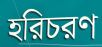
হরিচরণ